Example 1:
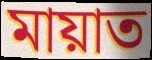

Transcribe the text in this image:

মায়াত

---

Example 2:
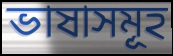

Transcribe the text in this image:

ভাষাসমূহ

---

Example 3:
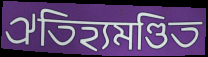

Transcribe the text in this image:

ঐতিহ্যমণ্ডিত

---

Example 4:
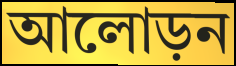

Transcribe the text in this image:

আলোড়ন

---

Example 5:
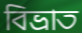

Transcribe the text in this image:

বিভ্ৰাত